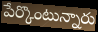
పేర్కొంటున్నారు